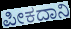
ಪೀಕದಾನಿ